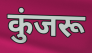
कुंजरू